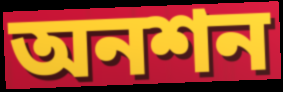
অনশন